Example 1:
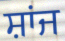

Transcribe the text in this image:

ਸ਼ਾਂਜ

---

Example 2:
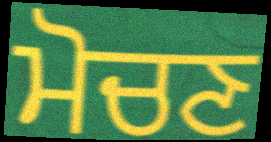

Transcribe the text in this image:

ਮੋਚਣ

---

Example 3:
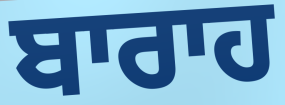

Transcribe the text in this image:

ਬਾਰਾਹ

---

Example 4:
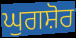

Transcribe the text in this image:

ਘੁਗਸ਼ੋਰ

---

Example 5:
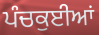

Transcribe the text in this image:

ਪੰਚਕੁਈਆਂ